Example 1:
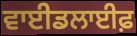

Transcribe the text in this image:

ਵਾਈਡਲਾਈਫ਼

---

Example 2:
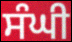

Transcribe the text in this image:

ਸੰਘੀ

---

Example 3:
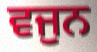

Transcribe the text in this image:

ਵਜੁਨ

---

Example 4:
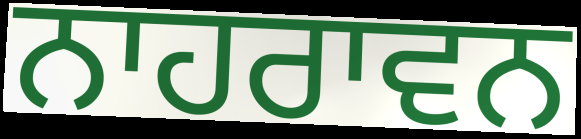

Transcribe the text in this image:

ਨਾਹਰਾਵਨ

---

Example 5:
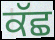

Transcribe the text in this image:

ਕੱਛ